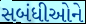
સબંધીઓને